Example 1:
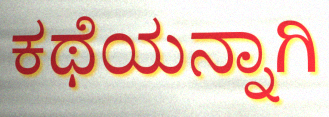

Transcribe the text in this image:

ಕಥೆಯನ್ನಾಗಿ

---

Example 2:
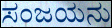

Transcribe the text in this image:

ಸಂಜಯನು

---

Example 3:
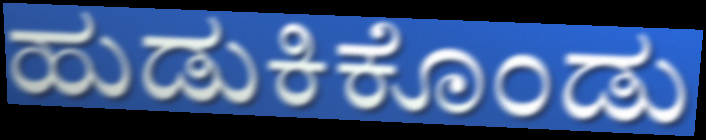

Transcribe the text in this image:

ಹುಡುಕಿಕೊಂಡು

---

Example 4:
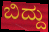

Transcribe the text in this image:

ಬಿದ್ದು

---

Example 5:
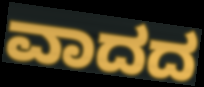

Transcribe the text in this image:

ವಾದದ